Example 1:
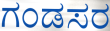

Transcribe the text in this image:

ಗಂಡಸರ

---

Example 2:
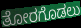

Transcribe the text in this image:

ತೋರಗೊಡಲು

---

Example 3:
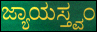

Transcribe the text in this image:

ಜ್ಯಾಯಸ್ತ್ವಂ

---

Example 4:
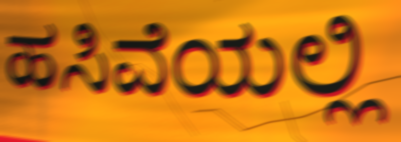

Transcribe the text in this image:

ಹಸಿವೆಯಲ್ಲಿ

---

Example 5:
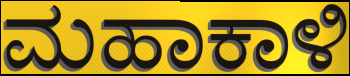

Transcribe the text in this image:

ಮಹಾಕಾಳಿ